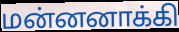
மன்னனாக்கி